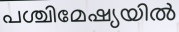
പശ്ചിമേഷ്യയിൽ